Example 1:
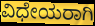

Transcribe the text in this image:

ವಿಧೇಯರಾಗಿ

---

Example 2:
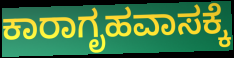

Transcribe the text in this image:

ಕಾರಾಗೃಹವಾಸಕ್ಕೆ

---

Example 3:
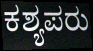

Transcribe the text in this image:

ಕಶ್ಯಪರು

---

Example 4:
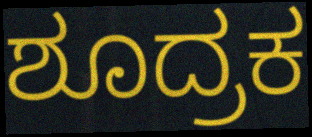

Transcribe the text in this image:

ಶೂದ್ರಕ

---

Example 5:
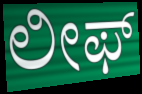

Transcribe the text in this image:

ಲೀಫ್